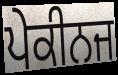
ਪੇਕੀਨਜ